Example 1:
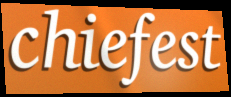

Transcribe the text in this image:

chiefest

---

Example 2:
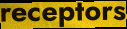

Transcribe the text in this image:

receptors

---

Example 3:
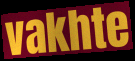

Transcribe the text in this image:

vakhte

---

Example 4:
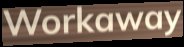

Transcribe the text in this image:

Workaway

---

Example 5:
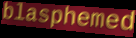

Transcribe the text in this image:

blasphemed